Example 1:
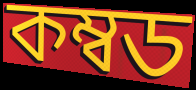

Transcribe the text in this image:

কম্বড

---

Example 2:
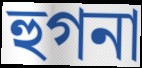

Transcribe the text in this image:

হুগনা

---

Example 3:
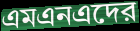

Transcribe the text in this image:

এমএনএদের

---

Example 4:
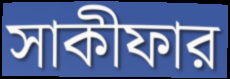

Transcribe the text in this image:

সাকীফার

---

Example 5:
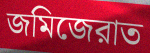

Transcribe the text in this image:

জমিজেরাত